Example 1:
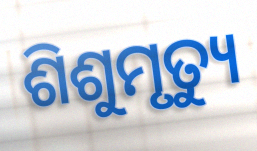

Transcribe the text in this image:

ଶିଶୁମୃତ୍ୟୁ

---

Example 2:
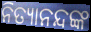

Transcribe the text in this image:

ନିତ୍ୟାନନ୍ଦଙ୍କ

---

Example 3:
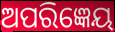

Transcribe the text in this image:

ଅପରିଜ୍ଞେୟ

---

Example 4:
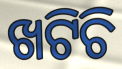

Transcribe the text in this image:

ଖଟିଚି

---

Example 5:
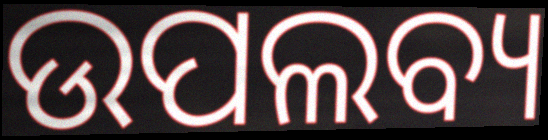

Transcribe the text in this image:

ଉପଲବ୍ୟ